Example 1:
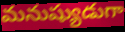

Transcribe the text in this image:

మనుష్యుడుగా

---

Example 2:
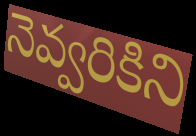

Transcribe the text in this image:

నెవ్వరికిని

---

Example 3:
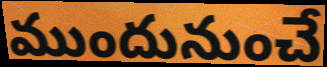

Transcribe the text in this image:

ముందునుంచే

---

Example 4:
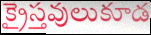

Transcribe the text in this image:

క్రైస్తవులుకూడ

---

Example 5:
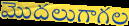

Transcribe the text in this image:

మొదలుగాగల